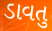
ડાવતુ